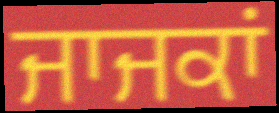
ਜਾਜਕਾਂ